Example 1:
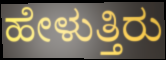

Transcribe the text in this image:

ಹೇಳುತ್ತಿರು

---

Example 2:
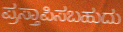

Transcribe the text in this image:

ಪ್ರಸ್ತಾಪಿಸಬಹುದು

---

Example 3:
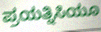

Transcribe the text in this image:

ಪ್ರಯತ್ನಿಸಿಯೂ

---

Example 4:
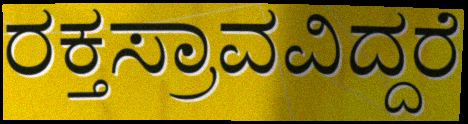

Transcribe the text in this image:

ರಕ್ತಸ್ರಾವವಿದ್ದರೆ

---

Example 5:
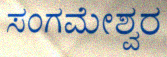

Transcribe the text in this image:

ಸಂಗಮೇಶ್ವರ